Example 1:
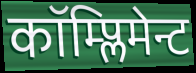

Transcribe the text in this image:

कॉम्प्लिमेन्ट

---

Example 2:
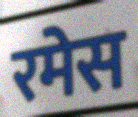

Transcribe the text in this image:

रमेस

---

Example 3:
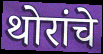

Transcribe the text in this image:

थोरांचे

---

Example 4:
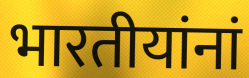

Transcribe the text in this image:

भारतीयांनां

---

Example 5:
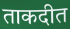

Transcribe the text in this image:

ताकदीत